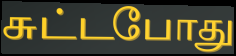
சுட்டபோது